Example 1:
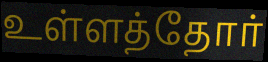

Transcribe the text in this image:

உள்ளத்தோர்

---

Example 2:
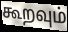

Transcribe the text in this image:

கூறவும்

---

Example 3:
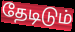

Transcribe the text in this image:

தேடிடும்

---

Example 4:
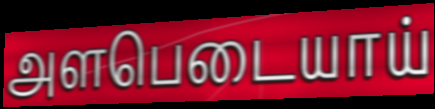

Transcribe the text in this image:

அளபெடையாய்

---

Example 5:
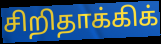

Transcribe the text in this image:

சிறிதாக்கிக்